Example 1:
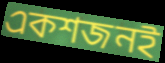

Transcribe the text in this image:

একশজনই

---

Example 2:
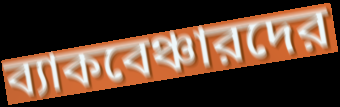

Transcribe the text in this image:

ব্যাকবেঞ্চারদের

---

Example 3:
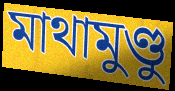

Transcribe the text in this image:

মাথামুণ্ডু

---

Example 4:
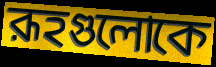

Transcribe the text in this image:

রূহগুলোকে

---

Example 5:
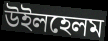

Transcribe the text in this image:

উইলহেলম